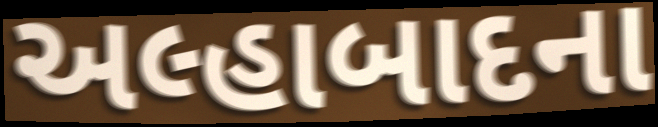
અલ્હાબાદના